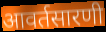
आवर्तसारणी